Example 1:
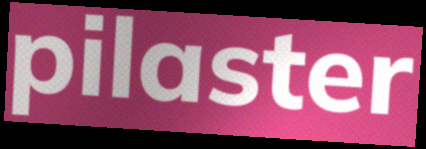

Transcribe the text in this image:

pilaster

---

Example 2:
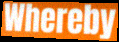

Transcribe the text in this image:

Whereby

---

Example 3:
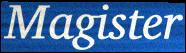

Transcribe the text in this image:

Magister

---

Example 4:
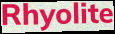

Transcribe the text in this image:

Rhyolite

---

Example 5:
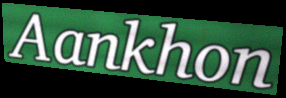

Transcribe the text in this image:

Aankhon